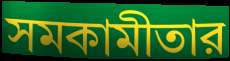
সমকামীতার